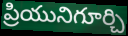
ప్రియునిగూర్చి